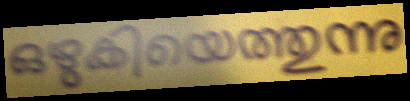
ഒഴുകിയെത്തുന്നു